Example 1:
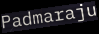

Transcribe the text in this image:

Padmaraju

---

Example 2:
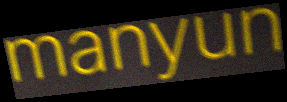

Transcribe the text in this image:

manyun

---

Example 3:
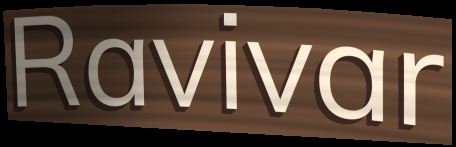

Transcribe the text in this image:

Ravivar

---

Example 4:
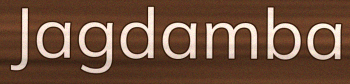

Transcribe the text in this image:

Jagdamba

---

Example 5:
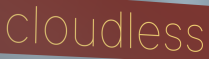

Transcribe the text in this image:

cloudless